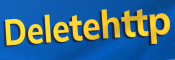
Deletehttp